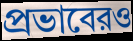
প্রভাবেরও